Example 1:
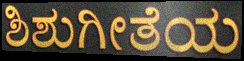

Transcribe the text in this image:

ಶಿಶುಗೀತೆಯ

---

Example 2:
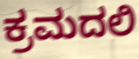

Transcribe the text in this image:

ಕ್ರಮದಲಿ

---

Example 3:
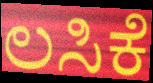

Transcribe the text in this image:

ಲಸಿಕೆ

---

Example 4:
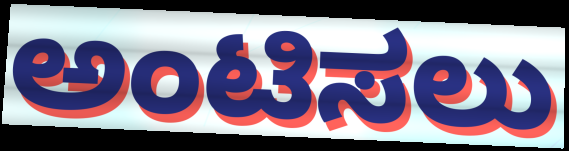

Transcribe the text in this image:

ಅಂಟಿಸಲು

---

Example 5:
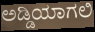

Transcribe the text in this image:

ಅಡ್ಡಿಯಾಗಲಿ